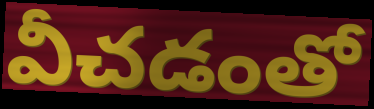
వీచడంతో